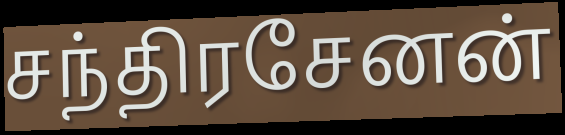
சந்திரசேனன்